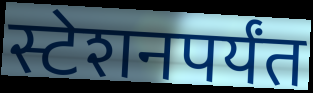
स्टेशनपर्यंत